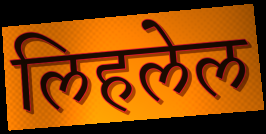
लिहलेल